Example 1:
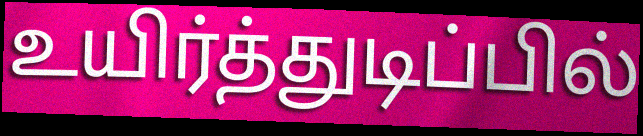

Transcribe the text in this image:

உயிர்த்துடிப்பில்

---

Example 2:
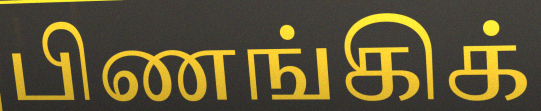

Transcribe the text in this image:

பிணங்கிக்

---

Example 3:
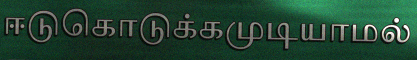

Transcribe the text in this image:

ஈடுகொடுக்கமுடியாமல்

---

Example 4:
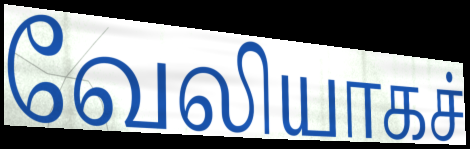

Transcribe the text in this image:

வேலியாகச்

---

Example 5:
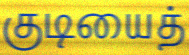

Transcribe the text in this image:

குடியைத்